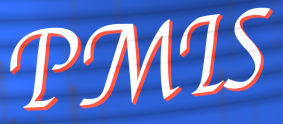
PMIS